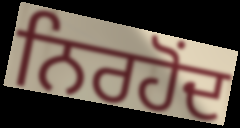
ਨਿਰਹੋਂਦ